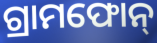
ଗ୍ରାମଫୋନ୍